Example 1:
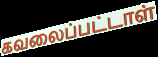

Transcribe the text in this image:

கவலைப்பட்டாள்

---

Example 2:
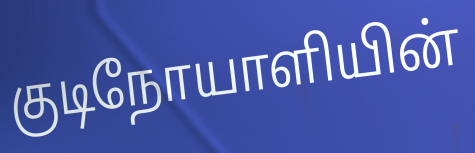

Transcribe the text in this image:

குடிநோயாளியின்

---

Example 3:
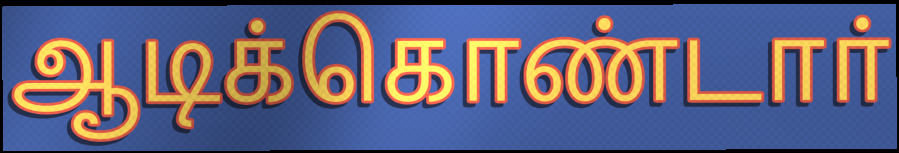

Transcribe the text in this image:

ஆடிக்கொண்டார்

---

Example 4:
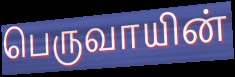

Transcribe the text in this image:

பெருவாயின்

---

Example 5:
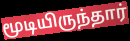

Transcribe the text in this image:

மூடியிருந்தார்